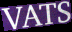
VATS